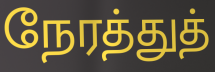
நேரத்துத்